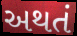
અથતં